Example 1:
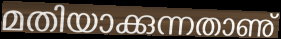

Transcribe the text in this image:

മതിയാക്കുന്നതാണു്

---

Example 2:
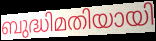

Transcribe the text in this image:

ബുദ്ധിമതിയായി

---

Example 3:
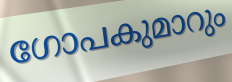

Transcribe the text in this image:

ഗോപകുമാറും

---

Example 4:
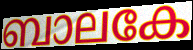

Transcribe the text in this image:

ബാലകേ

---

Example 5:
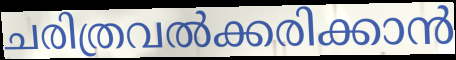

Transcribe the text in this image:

ചരിത്രവൽക്കരിക്കാൻ